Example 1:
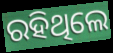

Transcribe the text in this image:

ରହିଥିଲେ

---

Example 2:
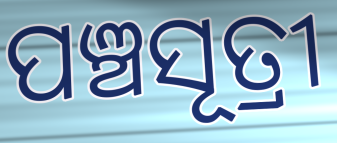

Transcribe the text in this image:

ପଞ୍ଚସୂତ୍ରୀ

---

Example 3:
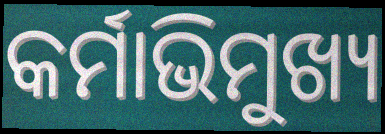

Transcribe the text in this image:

କର୍ମାଭିମୁଖ୍ୟ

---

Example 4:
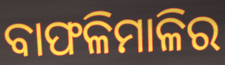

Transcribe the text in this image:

ବାଫଳିମାଳିର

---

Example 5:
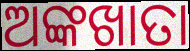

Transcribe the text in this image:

ଅଙ୍କଖାତା